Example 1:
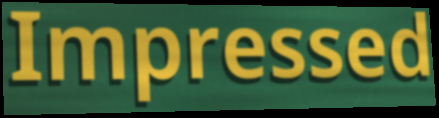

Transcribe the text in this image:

Impressed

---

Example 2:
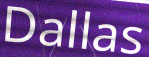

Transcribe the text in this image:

Dallas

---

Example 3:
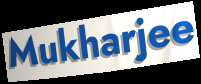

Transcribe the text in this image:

Mukharjee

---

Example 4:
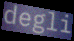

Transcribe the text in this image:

degli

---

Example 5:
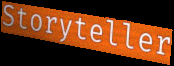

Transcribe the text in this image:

Storyteller